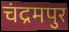
चंद्रमपुर